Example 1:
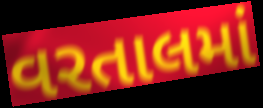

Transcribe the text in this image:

વરતાલમાં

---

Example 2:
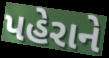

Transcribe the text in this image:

પહેરાને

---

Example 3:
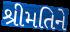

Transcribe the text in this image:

શ્રીમતિને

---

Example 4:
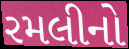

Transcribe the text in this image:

રમલીનો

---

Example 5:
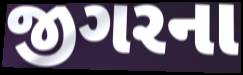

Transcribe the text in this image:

જીગરના